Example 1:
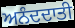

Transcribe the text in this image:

ਅਨੰਦਦਾਤੀ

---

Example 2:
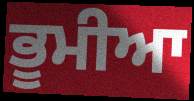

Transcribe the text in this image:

ਭੂਮੀਆ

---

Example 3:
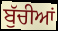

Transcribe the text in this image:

ਬੁੱਚੀਆਂ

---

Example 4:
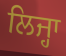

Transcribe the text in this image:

ਲਿਜ੍ਹਾ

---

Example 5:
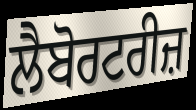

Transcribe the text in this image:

ਲੈਬੋਰਟਰੀਜ਼